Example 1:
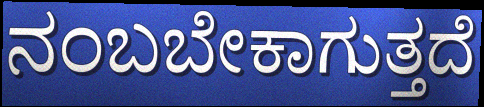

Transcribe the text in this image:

ನಂಬಬೇಕಾಗುತ್ತದೆ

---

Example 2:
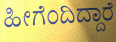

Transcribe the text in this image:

ಹೀಗೆಂದಿದ್ದಾರೆ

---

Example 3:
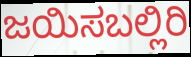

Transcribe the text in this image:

ಜಯಿಸಬಲ್ಲಿರಿ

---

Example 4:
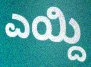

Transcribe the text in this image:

ಎಯ್ದಿ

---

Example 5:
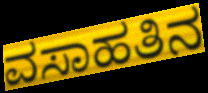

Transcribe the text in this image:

ವಸಾಹತಿನ